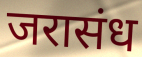
जरासंध